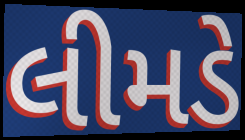
લીમડે